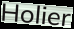
Holier